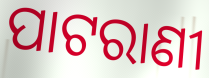
ପାଟରାଣୀ